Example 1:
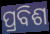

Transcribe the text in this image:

ପ୍ରବିଶ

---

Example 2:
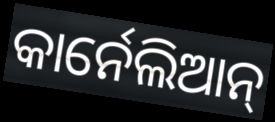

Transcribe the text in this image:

କାର୍ନେଲିଆନ୍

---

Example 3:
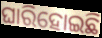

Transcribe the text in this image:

ଘାରିହୋଇଛି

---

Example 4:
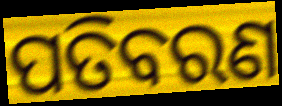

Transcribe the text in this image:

ପତିବରଣ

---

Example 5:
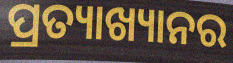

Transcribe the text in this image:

ପ୍ରତ୍ୟାଖ୍ୟାନର